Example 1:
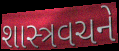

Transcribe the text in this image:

શાસ્ત્રવચને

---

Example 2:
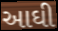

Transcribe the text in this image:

આઘી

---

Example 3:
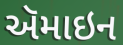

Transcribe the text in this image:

ઍમાઇન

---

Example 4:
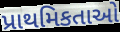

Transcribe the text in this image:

પ્રાથમિકતાઓ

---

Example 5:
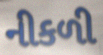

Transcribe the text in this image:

નીકળી